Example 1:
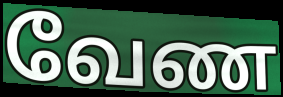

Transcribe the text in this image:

வேண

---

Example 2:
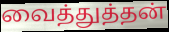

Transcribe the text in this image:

வைத்துத்தன்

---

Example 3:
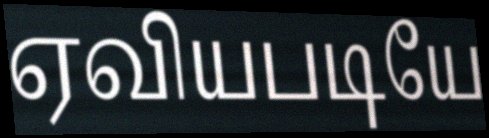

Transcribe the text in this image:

ஏவியபடியே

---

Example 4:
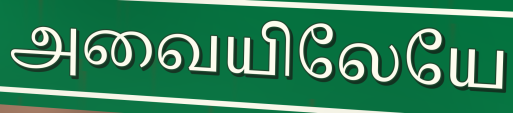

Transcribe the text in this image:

அவையிலேயே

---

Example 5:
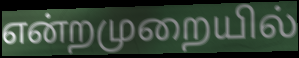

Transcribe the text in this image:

என்றமுறையில்